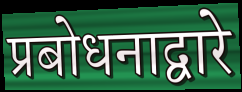
प्रबोधनाद्वारे